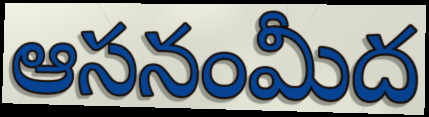
ఆసనంమీద